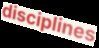
disciplines